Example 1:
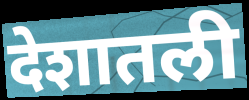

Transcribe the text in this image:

देशातली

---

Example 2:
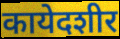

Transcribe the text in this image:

कायेदशीर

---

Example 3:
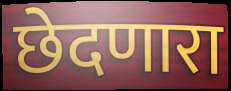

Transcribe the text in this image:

छेदणारा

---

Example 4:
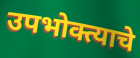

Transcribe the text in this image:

उपभोक्त्याचे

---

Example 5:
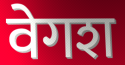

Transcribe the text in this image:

वेगश